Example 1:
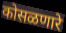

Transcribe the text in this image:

कोसळणारे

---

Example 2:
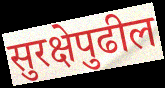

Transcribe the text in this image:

सुरक्षेपुढील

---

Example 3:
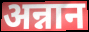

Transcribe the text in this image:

अन्नान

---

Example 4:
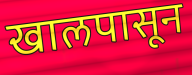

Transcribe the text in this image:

खालपासून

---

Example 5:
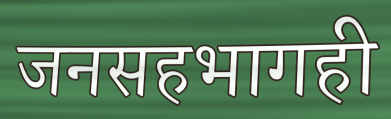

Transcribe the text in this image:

जनसहभागही